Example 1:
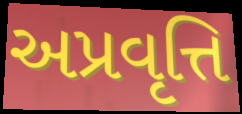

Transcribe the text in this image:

અપ્રવૃત્તિ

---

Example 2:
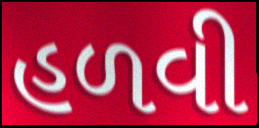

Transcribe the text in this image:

હળવી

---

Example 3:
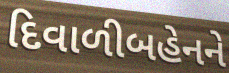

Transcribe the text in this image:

દિવાળીબહેનને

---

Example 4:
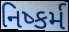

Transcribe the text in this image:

નિષ્કર્મ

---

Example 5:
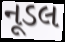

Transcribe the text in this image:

નૂડલ